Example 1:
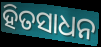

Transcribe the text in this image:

ହିତସାଧନ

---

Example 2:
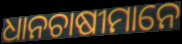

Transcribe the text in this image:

ଧାନଚାଷୀମାନେ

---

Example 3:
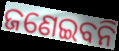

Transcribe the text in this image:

ଜଣେଇବନି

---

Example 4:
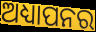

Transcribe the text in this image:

ଅଧ୍ୟାପନର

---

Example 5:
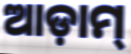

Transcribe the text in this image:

ଆଡ଼ାମ୍